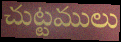
చుట్టములు